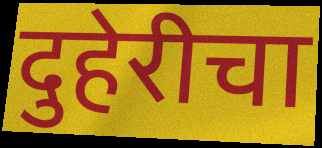
दुहेरीचा